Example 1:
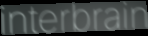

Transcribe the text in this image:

interbrain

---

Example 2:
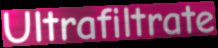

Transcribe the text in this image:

Ultrafiltrate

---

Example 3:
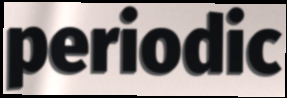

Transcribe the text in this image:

periodic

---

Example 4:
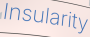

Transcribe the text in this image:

Insularity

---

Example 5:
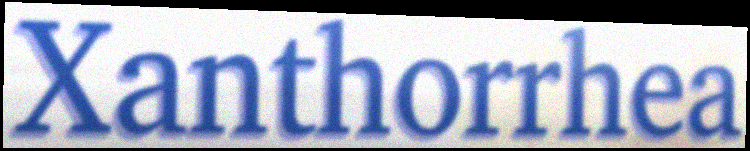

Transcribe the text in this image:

Xanthorrhea